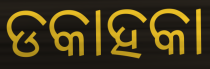
ଡକାହକା